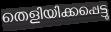
തെളിയിക്കപ്പെട്ടു